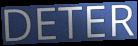
DETER